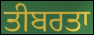
ਤੀਬਰਤਾ